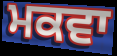
ਮਕਵਾ